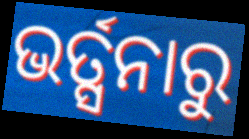
ଭର୍ତ୍ସନାରୁ